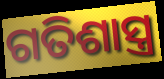
ଗତିଶାସ୍ତ୍ର